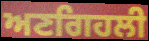
ਅਣਗਿਹਲੀ